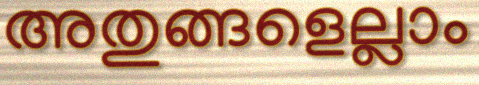
അതുങ്ങളെല്ലാം